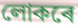
লোকৰে